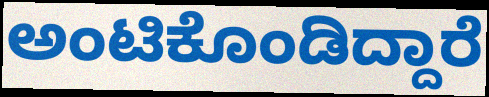
ಅಂಟಿಕೊಂಡಿದ್ದಾರೆ